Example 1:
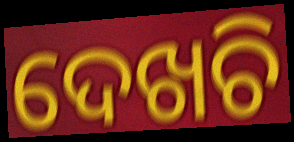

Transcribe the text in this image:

ଦେଖଚି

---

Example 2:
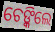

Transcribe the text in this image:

ଚେଙ୍କିଲେ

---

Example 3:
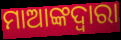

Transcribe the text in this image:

ମାଆଙ୍କଦ୍ଵାରା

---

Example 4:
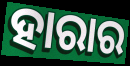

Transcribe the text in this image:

ହାରାର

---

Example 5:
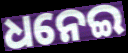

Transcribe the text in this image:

ଧନେଇ